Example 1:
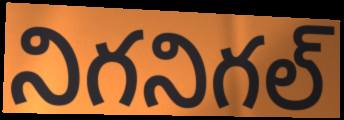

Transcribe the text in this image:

నిగనిగల్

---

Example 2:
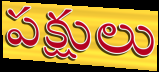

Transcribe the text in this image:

పక్షులు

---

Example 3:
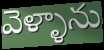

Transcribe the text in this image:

వెళ్ళాను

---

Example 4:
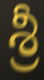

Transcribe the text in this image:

శ్రీ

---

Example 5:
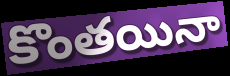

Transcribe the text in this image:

కొంతయినా